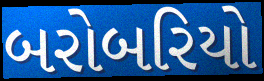
બરોબરિયો